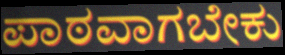
ಪಾಠವಾಗಬೇಕು